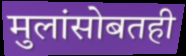
मुलांसोबतही